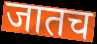
जातच